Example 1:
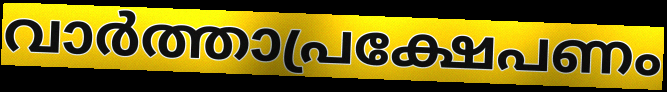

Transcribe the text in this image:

വാർത്താപ്രക്ഷേപണം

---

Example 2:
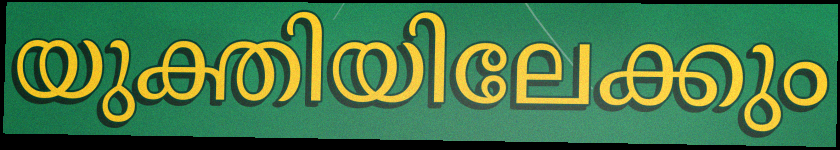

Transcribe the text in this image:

യുക്തിയിലേക്കും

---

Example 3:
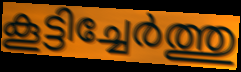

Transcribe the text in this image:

കൂട്ടിച്ചേർത്തു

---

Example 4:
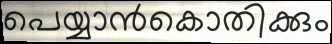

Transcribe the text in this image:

പെയ്യാൻകൊതിക്കും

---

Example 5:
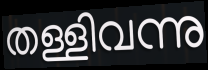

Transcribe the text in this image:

തള്ളിവന്നു